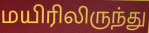
மயிரிலிருந்து